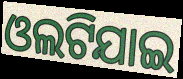
ଓଲଟିଯାଇ